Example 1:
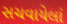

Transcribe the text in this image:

સચવાયેલાં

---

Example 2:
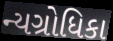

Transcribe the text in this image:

ન્યગ્રોધિકા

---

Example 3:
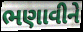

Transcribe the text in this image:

ભણાવીને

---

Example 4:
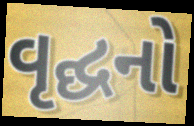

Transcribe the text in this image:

વૃદ્ઘનો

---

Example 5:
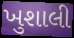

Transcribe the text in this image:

ખુશાલી